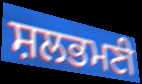
ਸ਼ਲਭਮਣੀ